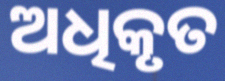
ଅଧିକୃତ